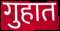
गुहात